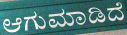
ಆಗುಮಾಡಿದೆ